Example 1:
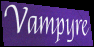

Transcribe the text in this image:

Vampyre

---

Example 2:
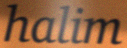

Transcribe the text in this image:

halim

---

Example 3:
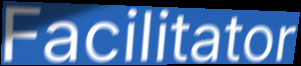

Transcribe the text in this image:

Facilitator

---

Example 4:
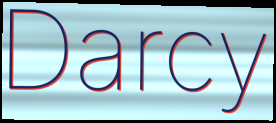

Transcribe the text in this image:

Darcy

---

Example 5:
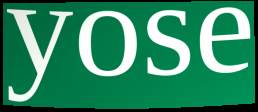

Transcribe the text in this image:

yose